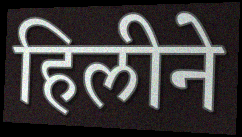
हिलीने